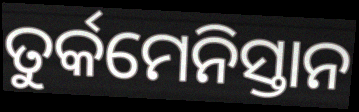
ତୁର୍କମେନିସ୍ତାନ